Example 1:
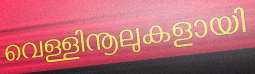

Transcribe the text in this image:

വെള്ളിനൂലുകളായി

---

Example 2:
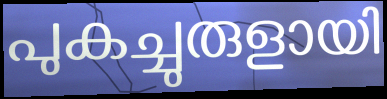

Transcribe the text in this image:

പുകച്ചുരുളായി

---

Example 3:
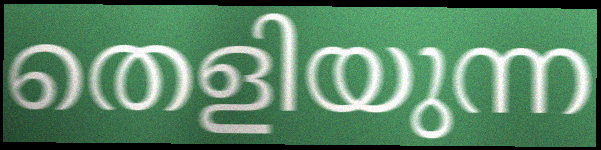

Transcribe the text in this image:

തെളിയുന്ന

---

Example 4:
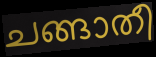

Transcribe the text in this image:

ചങ്ങാതീ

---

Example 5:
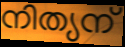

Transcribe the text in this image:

നിത്യന്